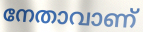
നേതാവാണ്